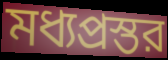
মধ্যপ্রস্তর